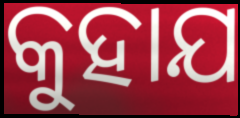
କୁହାଯ